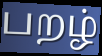
பறழ்